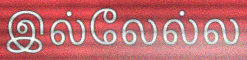
இல்லேல்ல